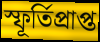
স্ফূর্তিপ্রাপ্ত